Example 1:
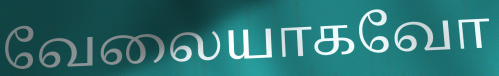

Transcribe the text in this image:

வேலையாகவோ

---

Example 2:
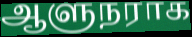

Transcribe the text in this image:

ஆளுநராக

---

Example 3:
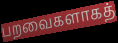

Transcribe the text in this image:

பறவைகளாகத்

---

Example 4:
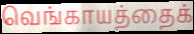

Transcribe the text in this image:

வெங்காயத்தைக்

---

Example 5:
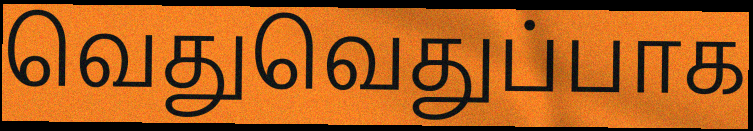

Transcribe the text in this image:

வெதுவெதுப்பாக